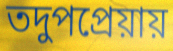
তদুপপ্রেয়ায়